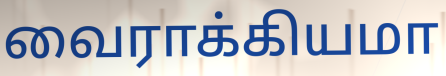
வைராக்கியமா